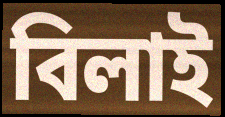
বিলাই